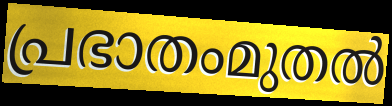
പ്രഭാതംമുതൽ